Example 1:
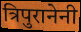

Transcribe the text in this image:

त्रिपुरानेनी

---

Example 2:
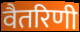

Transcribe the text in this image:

वैतरिणी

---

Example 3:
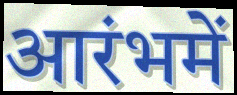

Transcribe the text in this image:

आरंभमें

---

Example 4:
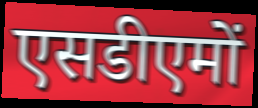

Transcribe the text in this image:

एसडीएमों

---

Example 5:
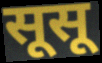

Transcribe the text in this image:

सूसू